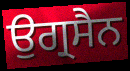
ਉਗ੍ਰਸੈਨ